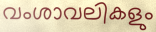
വംശാവലികളും